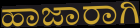
ಹಾಜಾರಾಗಿ